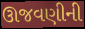
ઊજવણીની